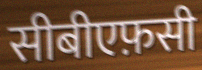
सीबीएफ़सी